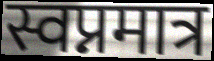
स्वप्नमात्र